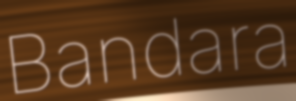
Bandara